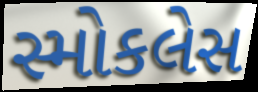
સ્મોકલેસ